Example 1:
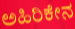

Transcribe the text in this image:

ಅಹಿರಿಕೇನ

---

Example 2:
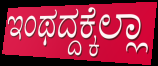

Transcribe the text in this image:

ಇಂಥದ್ದಕ್ಕೆಲ್ಲಾ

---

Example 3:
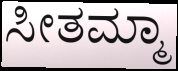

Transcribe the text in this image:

ಸೀತಮ್ಮಾ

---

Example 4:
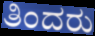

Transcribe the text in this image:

ತಿಂದರು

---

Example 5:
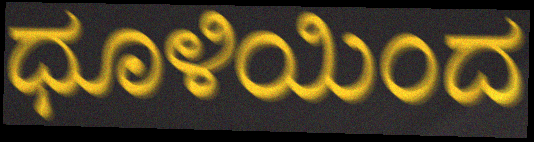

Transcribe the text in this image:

ಧೂಳಿಯಿಂದ